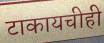
टाकायचीही